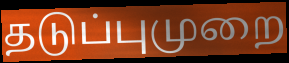
தடுப்புமுறை